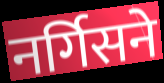
नर्गिसने